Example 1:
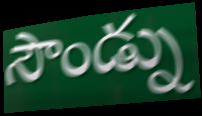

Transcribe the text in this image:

సౌండ్ను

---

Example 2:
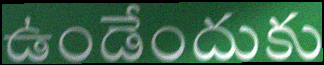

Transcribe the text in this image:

ఉండేందుకు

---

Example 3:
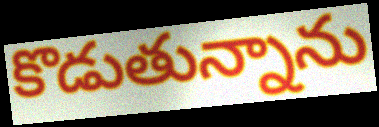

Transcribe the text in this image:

కొడుతున్నాను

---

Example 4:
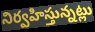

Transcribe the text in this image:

నిర్వహిస్తున్నట్లు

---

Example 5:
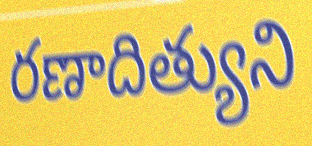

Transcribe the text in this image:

రణాదిత్యుని